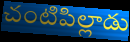
చంటిపిల్లాడు